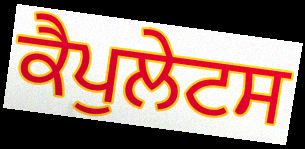
ਕੈਪੁਲੇਟਸ